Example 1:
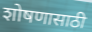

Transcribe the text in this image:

शोषणासाठी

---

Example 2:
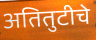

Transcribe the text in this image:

अतितुटीचे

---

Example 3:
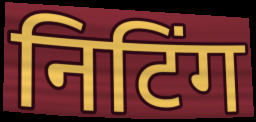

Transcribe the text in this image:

निटिंग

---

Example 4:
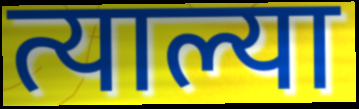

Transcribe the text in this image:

त्याल्या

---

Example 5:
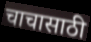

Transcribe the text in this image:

चाचासाठी